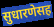
सुधारणेसह